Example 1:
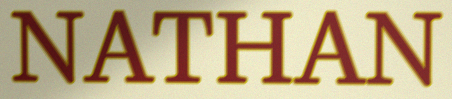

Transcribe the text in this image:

NATHAN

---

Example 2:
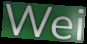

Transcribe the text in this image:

Wei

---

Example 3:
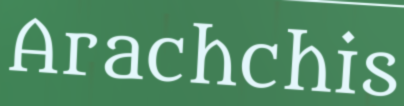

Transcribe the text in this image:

Arachchis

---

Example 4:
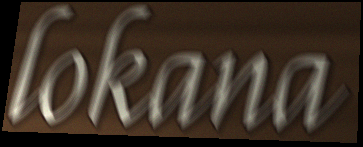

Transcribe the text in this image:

lokana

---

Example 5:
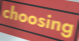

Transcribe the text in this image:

choosing